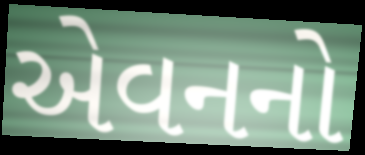
એવનનો